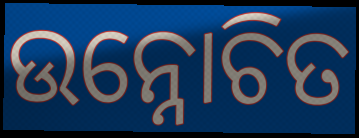
ଉନ୍ନୋଚିତ